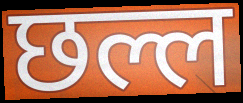
छल्ल